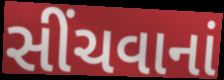
સીંચવાનાં